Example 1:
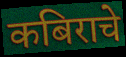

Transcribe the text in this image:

कबिराचे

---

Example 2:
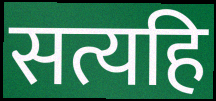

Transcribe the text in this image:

सत्यहि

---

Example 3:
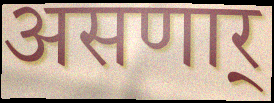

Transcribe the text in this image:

असणार्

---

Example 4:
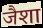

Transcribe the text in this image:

जैशा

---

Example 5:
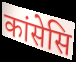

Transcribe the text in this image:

कांसेसि